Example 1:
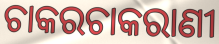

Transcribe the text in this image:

ଚାକରଚାକରାଣୀ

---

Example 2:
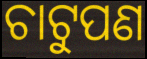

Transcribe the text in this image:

ଚାଟୁପଣ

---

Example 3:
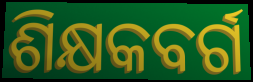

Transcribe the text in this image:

ଶିକ୍ଷକବର୍ଗ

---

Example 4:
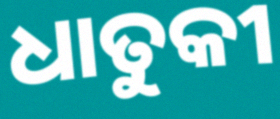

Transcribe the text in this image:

ଧାତୁକୀ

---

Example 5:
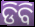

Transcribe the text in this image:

ଡିବି